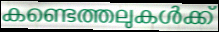
കണ്ടെത്തലുകൾക്ക്